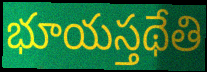
భూయస్తథేతి